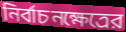
নির্বাচনক্ষেত্রের